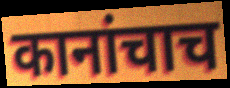
कानांचाच